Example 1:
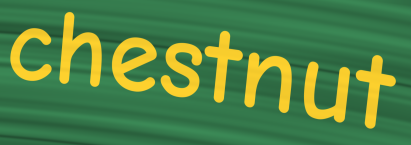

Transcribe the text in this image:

chestnut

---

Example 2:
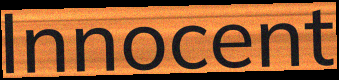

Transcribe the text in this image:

Innocent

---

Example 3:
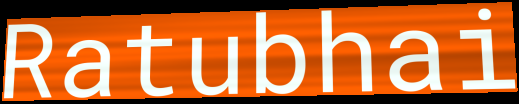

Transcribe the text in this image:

Ratubhai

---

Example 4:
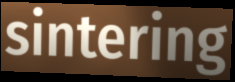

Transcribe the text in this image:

sintering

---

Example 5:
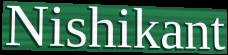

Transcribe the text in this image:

Nishikant